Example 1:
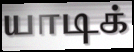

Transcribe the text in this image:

யாடிக்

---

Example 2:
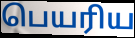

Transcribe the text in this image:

பெயரிய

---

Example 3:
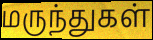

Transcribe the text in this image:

மருந்துகள்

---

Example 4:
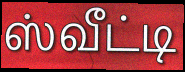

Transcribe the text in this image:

ஸ்வீட்டி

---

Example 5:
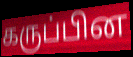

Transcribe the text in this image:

கருப்பின